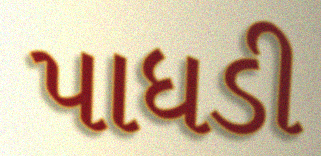
પાધડી